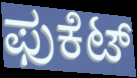
ಫುಕೆಟ್